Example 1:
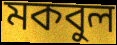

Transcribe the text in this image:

মকবুল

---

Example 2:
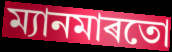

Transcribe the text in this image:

ম্যানমাৰতো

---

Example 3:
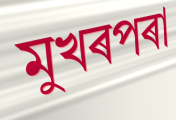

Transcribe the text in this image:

মুখৰপৰা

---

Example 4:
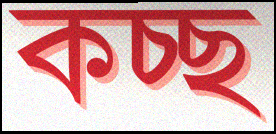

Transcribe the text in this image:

কচ্ছ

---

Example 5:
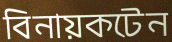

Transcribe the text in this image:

বিনায়কটেন